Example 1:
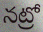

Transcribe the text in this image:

నట్రో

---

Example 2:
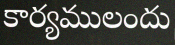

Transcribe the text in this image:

కార్యములందు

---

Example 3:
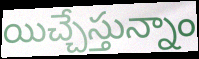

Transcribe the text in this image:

యిచ్చేస్తున్నాం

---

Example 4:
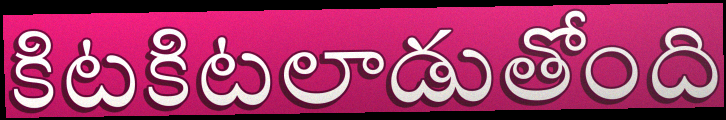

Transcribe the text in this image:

కిటకిటలాడుతోంది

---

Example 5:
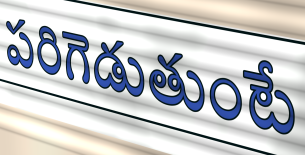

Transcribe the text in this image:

పరిగెడుతుంటే